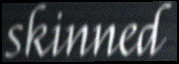
skinned